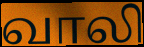
வாலி